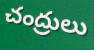
చంద్రులు